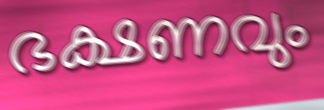
ഭക്ഷണവും